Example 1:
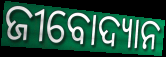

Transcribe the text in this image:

ଜୀବୋଦ୍ୟାନ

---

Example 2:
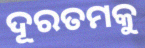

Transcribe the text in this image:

ଦୂରତମକୁ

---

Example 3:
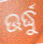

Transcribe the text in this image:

ଊର୍ଦ୍ଧୁ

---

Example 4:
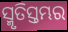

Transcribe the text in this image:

ସ୍ମୃତିସ୍ତମ୍ଭର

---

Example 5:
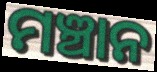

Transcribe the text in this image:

ମଞ୍ଚାନ